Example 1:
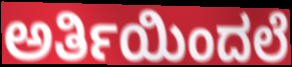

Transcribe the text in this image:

ಅರ್ತಿಯಿಂದಲೆ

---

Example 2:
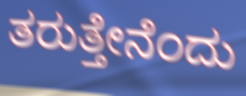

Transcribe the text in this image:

ತರುತ್ತೇನೆಂದು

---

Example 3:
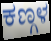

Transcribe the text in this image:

ಕಣ್ಗಳ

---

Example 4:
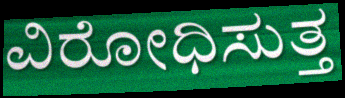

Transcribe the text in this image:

ವಿರೋಧಿಸುತ್ತ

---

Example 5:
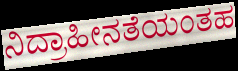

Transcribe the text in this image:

ನಿದ್ರಾಹೀನತೆಯಂತಹ